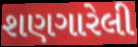
શણગારેલી